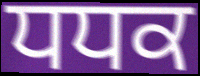
ਧਧਕ